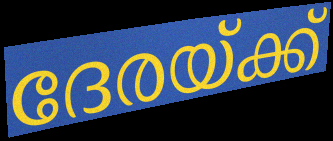
ദേരയ്ക്ക്